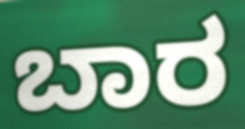
ಬಾರ